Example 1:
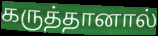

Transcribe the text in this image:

கருத்தானால்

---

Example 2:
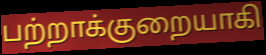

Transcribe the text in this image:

பற்றாக்குறையாகி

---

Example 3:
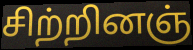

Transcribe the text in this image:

சிற்றினஞ்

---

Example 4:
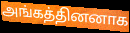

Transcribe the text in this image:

அங்கத்தினனாக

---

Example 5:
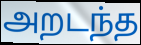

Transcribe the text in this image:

அறடந்த